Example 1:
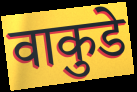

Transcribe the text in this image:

वाकुडे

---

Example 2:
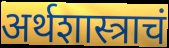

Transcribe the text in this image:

अर्थशास्त्राचं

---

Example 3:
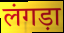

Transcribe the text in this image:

लंगड़ा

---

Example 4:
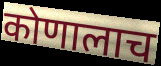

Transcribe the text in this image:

कोणालाच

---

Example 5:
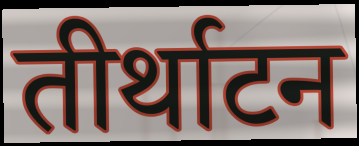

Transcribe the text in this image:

तीर्थाटन